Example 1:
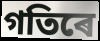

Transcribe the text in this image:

গতিৰে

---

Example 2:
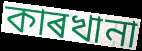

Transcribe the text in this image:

কাৰখানা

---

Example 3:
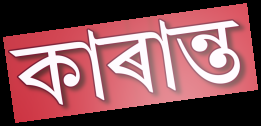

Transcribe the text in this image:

কাৰান্ত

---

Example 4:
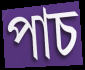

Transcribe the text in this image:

পাচ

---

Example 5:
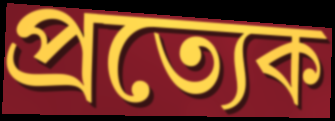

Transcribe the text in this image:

প্ৰত্যেক